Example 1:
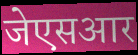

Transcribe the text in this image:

जेएसआर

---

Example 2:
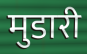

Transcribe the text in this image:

मुडारी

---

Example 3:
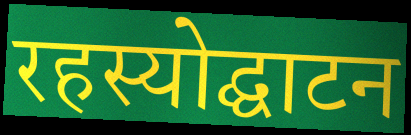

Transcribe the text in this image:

रहस्योद्घाटन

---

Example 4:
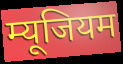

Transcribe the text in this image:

म्यूजियम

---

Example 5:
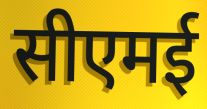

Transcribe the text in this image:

सीएमई